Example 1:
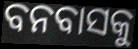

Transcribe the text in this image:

ବନବାସକୁ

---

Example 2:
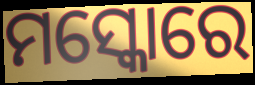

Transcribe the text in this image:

ମସ୍କୋରେ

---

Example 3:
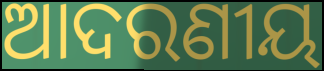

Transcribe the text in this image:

ଆଦରଣୀୟ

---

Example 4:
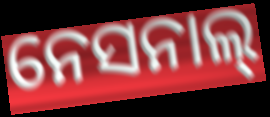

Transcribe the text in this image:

ନେସନାଲ୍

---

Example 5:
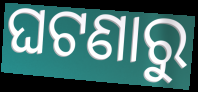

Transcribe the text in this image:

ଘଟଣାରୁ